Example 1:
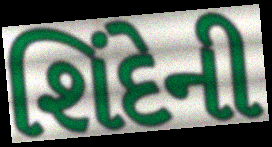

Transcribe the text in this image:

શિંદેની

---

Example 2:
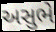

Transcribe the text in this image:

અસુભે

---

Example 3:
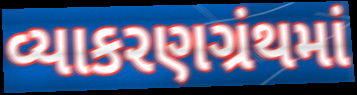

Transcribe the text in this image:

વ્યાકરણગ્રંથમાં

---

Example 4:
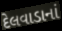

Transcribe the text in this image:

દેલવાડાનાં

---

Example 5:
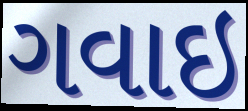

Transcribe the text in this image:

ગવાઇ